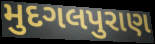
મુદગલપુરાણ